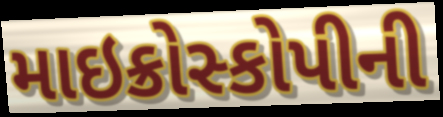
માઇક્રોસ્કોપીની